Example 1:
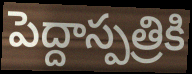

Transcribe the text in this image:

పెద్దాస్పత్రికి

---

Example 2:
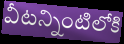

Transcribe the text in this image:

వీటన్నింటిలోకి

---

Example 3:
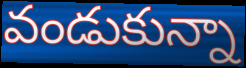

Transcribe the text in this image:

వండుకున్నా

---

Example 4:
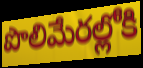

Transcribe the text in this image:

పొలిమేరల్లోకి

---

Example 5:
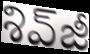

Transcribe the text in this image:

శివ్‌జీ